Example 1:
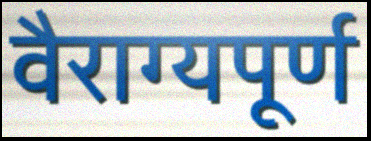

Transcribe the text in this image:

वैराग्यपूर्ण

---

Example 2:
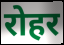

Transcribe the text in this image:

रोहर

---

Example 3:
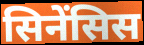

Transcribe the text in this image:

सिनेंसिस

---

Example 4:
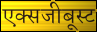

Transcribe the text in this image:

एक्सजीबूस्ट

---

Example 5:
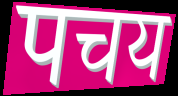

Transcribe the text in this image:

पचय